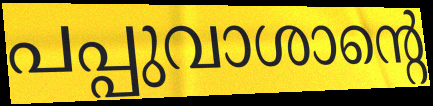
പപ്പുവാശാന്റെ